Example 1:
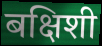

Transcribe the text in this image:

बक्षिशी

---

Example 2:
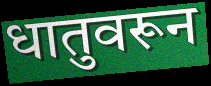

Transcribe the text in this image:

धातुवरून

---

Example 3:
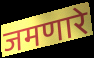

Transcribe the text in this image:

जमणारे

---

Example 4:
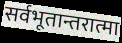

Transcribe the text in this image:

सर्वभूतान्तरात्मा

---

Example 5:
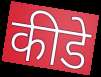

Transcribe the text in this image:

कीडे